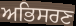
ਅਭਿਸਰਣ